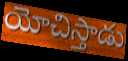
యోచిస్తాడు